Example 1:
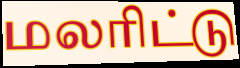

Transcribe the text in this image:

மலரிட்டு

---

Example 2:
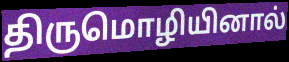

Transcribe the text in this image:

திருமொழியினால்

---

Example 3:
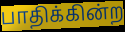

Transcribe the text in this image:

பாதிக்கின்ற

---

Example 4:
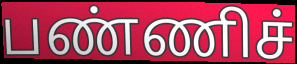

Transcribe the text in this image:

பண்ணிச்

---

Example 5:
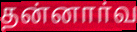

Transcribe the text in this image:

தன்னார்வ